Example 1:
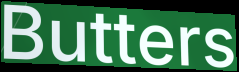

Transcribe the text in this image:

Butters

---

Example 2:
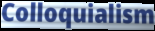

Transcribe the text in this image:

Colloquialism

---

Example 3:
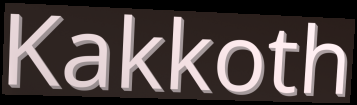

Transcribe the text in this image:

Kakkoth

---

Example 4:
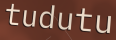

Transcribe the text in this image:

tudutu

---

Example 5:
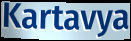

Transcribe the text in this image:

Kartavya